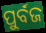
ପୁର୍ବଜ